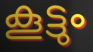
കൂട്ടും